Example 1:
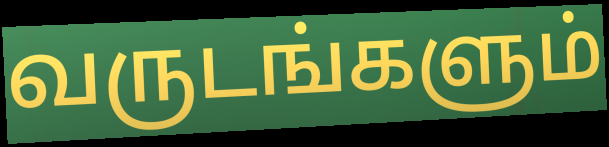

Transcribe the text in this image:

வருடங்களும்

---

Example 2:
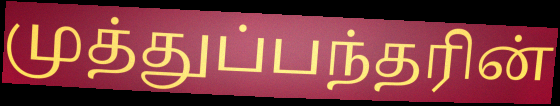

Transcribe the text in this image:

முத்துப்பந்தரின்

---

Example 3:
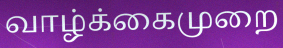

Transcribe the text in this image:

வாழ்க்கைமுறை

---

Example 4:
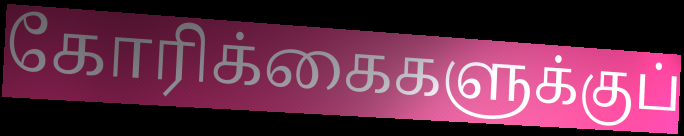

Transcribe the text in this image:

கோரிக்கைகளுக்குப்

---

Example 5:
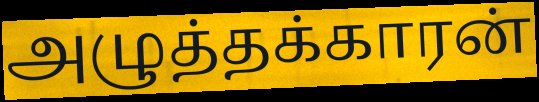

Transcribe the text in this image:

அழுத்தக்காரன்